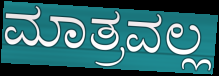
ಮಾತ್ರವಲ್ಲ